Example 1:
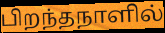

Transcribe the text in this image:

பிறந்தநாளில்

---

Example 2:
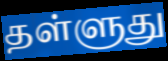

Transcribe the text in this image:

தள்ளுது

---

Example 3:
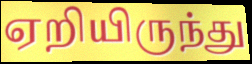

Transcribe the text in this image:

ஏறியிருந்து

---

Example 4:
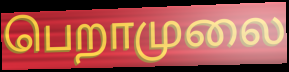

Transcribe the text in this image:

பெறாமுலை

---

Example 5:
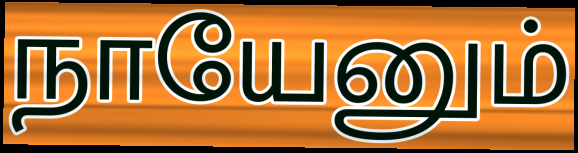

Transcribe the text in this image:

நாயேனும்